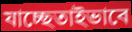
যাচ্ছেতাইভাবে